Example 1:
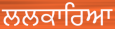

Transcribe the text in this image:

ਲਲਕਾਰਿਆ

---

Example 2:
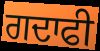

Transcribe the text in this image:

ਗਦਾਫੀ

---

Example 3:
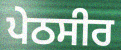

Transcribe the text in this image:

ਪੇਠਸੀਰ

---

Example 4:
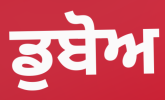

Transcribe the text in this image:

ਡੁਬੋਅ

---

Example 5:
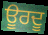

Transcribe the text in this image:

ਊਰਦੂ